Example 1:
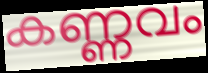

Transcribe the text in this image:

കണ്ണവം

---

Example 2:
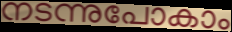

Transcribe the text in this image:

നടന്നുപോകാം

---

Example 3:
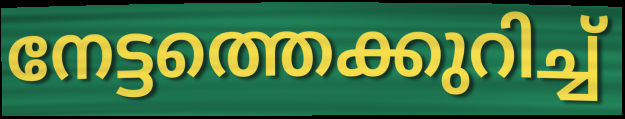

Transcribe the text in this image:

നേട്ടത്തെക്കുറിച്ച്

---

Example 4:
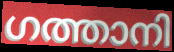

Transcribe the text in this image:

ഗത്താനി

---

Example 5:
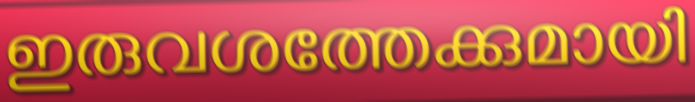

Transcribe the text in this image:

ഇരുവശത്തേക്കുമായി